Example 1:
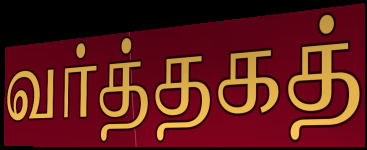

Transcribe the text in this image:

வர்த்தகத்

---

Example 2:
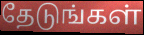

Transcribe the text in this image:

தேடுங்கள்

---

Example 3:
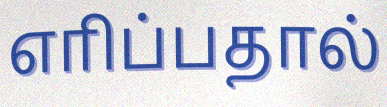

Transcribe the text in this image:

எரிப்பதால்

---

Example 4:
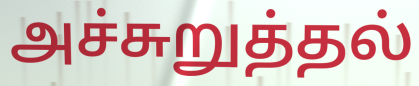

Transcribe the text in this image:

அச்சுறுத்தல்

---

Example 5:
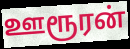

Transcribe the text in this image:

ஊரூரன்